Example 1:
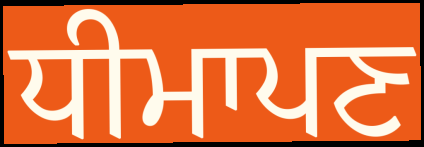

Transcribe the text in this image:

ਧੀਮਾਪਣ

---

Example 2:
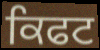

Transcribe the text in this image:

ਕਿਫਟ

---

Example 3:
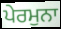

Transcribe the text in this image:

ਪੇਰਮੁਨਾ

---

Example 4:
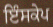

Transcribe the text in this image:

ਇੰਸਕੇਪ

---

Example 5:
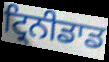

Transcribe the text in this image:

ਟ੍ਰਿਨੀਡਾਡ